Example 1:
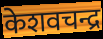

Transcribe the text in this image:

केशवचन्द्र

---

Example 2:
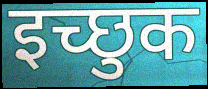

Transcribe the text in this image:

इच्छुक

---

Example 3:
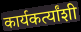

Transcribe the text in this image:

कार्यकर्त्यांशी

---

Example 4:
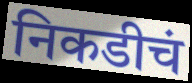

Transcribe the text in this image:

निकडीचं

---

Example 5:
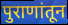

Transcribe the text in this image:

पुराणांतून